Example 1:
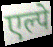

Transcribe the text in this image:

एल्पे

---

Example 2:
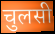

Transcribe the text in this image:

चुलसी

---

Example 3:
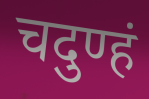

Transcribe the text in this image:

चदुण्हं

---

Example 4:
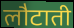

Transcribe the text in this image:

लौटाती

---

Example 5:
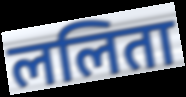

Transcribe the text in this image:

ललिता